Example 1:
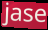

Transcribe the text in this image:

jase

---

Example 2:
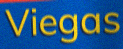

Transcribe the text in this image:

Viegas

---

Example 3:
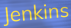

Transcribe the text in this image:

Jenkins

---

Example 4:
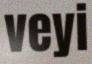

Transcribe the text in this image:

veyi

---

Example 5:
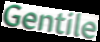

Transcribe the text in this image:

Gentile